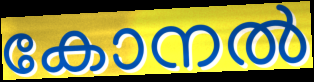
കോനൽ